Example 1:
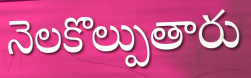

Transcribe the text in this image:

నెలకొల్పుతారు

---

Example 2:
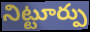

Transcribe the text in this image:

నిట్టూర్పు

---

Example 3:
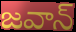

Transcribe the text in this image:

జవాన్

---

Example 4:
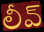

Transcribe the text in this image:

లీవ్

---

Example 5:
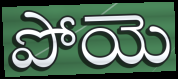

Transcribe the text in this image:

పోయె